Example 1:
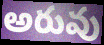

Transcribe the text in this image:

అరువు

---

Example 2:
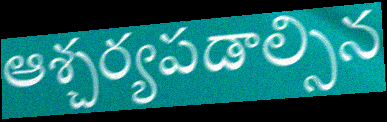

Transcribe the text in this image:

ఆశ్చర్యపడాల్సిన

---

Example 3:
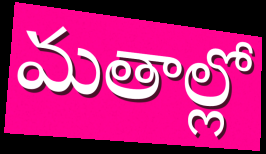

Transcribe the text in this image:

మతాల్లో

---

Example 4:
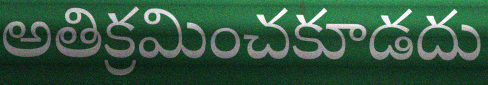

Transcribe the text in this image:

అతిక్రమించకూడదు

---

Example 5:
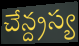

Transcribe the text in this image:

చేన్ద్రస్య